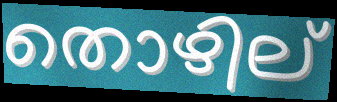
തൊഴില്